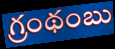
గ్రంథంబు